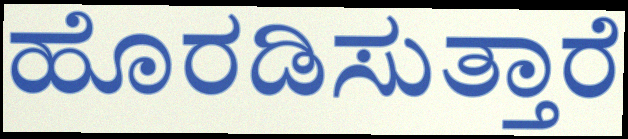
ಹೊರಡಿಸುತ್ತಾರೆ